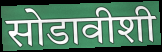
सोडावीशी